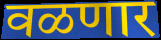
वळणार